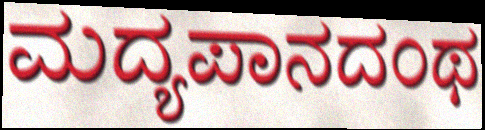
ಮದ್ಯಪಾನದಂಥ